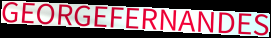
GEORGEFERNANDES